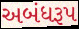
અબંધરૂપ